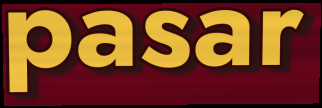
pasar